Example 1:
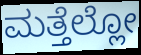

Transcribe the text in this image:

ಮತ್ತೆಲ್ಲೋ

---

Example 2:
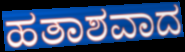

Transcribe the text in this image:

ಹತಾಶವಾದ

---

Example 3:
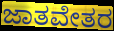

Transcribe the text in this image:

ಜಾತವೇತರ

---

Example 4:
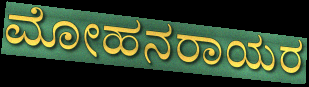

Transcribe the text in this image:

ಮೋಹನರಾಯರ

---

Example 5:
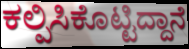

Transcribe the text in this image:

ಕಲ್ಪಿಸಿಕೊಟ್ಟಿದ್ದಾನೆ